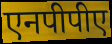
एनपीपीए